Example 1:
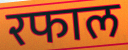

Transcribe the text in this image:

रफाल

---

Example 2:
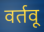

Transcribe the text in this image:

वर्तवू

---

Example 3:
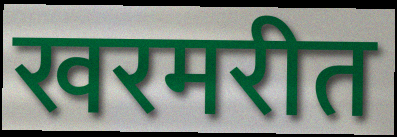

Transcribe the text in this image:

खरमरीत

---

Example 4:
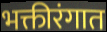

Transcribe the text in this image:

भक्तीरंगात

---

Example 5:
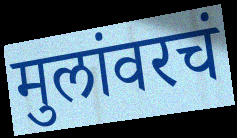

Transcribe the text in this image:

मुलांवरचं